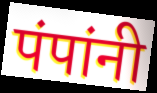
पंपांनी